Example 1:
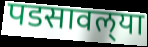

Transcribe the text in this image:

पडसावल्या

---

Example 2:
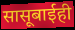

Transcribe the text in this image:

सासूबाईही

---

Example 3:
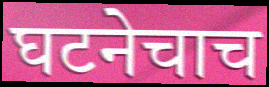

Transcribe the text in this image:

घटनेचाच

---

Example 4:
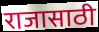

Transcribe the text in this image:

राजासाठी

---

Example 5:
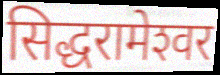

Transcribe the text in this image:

सिद्धरामेश्‍वर